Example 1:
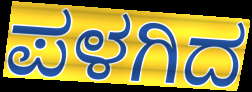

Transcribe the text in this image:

ಪಳಗಿದ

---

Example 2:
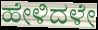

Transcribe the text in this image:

ಹೇಳಿದಳೇ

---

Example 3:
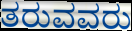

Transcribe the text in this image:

ತರುವವರು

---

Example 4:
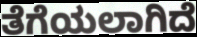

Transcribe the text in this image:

ತೆಗೆಯಲಾಗಿದೆ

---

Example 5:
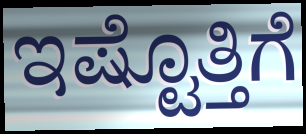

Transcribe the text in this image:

ಇಷ್ಟೊತ್ತಿಗೆ